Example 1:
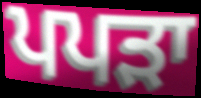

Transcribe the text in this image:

ਪਪੜਾ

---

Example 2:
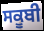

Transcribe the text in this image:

ਸਕੂਬੀ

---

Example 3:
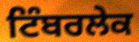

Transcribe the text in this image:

ਟਿੰਬਰਲੇਕ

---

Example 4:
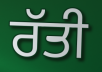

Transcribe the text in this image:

ਰੱਤੀ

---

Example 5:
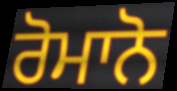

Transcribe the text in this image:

ਰੋਮਾਨੋ